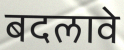
बदलावे